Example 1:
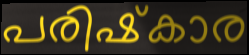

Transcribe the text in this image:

പരിഷ്‌കാര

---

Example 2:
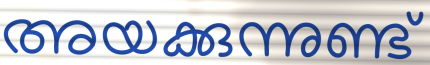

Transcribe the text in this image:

അയക്കുന്നുണ്ട്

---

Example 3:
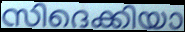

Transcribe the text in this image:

സിദെക്കിയാ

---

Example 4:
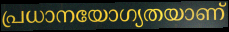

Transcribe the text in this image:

പ്രധാനയോഗ്യതയാണ്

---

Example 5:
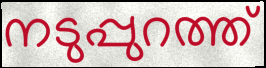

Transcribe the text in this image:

നടുപ്പുറത്ത്